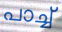
പാച്ച്